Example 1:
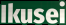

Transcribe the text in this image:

Ikusei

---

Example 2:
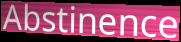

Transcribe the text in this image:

Abstinence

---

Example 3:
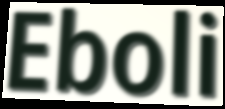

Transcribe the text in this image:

Eboli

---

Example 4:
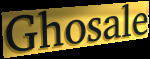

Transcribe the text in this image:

Ghosale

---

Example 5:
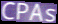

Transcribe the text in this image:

CPAs